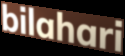
bilahari